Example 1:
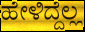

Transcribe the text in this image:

ಹೇಳಿದ್ದೆಲ್ಲ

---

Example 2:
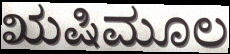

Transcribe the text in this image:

ಋಷಿಮೂಲ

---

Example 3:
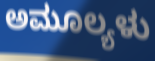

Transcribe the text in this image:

ಅಮೂಲ್ಯಳು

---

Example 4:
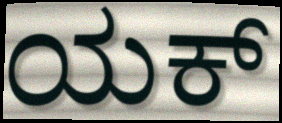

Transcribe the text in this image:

ಯಕ್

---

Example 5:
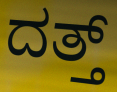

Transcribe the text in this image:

ದತ್ತ್